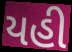
યહી